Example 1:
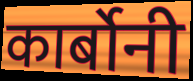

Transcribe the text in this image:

कार्बोनी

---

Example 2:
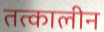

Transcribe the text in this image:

तत्कालीन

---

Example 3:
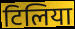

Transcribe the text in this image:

टिलिया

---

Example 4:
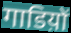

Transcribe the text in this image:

गाडिय़ों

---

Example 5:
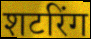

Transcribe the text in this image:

शटरिंग